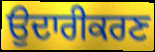
ਉਦਾਰੀਕਰਣ